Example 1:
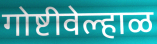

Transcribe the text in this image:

गोष्टीवेल्हाळ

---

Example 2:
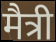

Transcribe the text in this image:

मैत्री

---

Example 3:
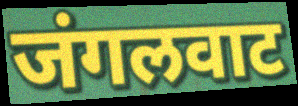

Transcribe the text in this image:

जंगलवाट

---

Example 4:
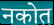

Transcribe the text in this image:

नकोत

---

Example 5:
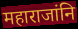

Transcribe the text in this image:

महाराजांनि